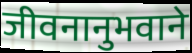
जीवनानुभवाने